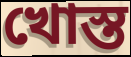
খোস্ত